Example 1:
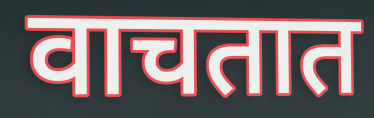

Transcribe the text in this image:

वाचतात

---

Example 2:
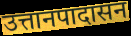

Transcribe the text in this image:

उत्तानपादासन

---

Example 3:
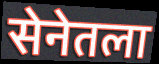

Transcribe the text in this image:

सेनेतला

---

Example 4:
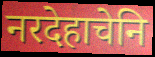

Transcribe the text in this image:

नरदेहाचेनि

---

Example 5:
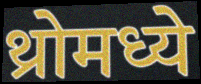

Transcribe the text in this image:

थ्रोमध्ये